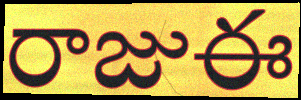
రాజుఈ